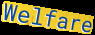
Welfare